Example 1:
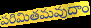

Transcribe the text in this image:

పరిమితమవుదాం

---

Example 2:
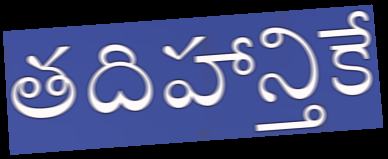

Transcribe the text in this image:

తదిహాన్తికే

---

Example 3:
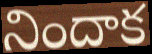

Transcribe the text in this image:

నిందాక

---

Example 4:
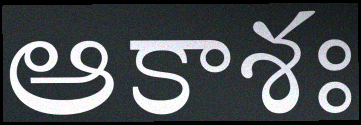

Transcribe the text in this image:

ఆకాశః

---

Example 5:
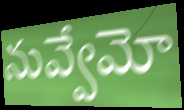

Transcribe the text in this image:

నువ్వేమో